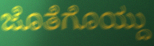
ಜೊತೆಗೊಯ್ದು